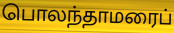
பொலந்தாமரைப்